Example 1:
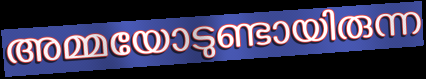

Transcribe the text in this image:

അമ്മയോടുണ്ടായിരുന്ന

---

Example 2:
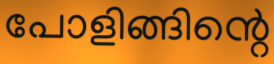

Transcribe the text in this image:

പോളിങ്ങിന്റെ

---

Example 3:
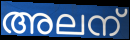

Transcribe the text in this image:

അലന്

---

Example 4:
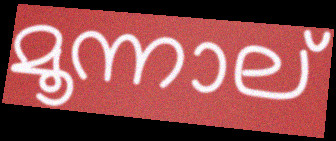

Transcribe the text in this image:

മൂന്നാല്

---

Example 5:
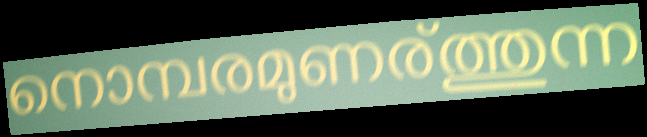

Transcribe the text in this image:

നൊമ്പരമുണര്ത്തുന്ന